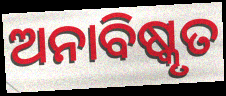
ଅନାବିଷ୍କୃତ